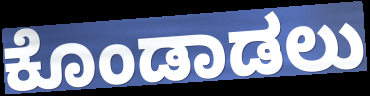
ಕೊಂಡಾಡಲು